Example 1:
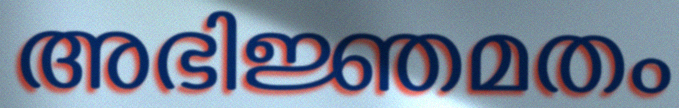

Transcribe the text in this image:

അഭിജ്ഞമതം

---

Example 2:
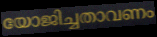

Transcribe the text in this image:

യോജിച്ചതാവണം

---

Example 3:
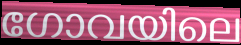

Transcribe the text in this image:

ഗോവയിലെ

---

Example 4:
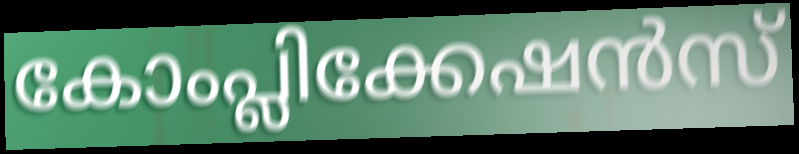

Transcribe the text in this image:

കോംപ്ലിക്കേഷൻസ്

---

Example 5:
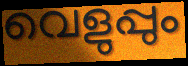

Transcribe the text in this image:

വെളുപ്പും